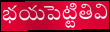
భయపెట్టితివి